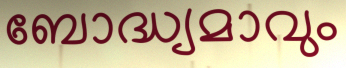
ബോദ്ധ്യമാവും